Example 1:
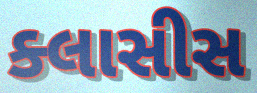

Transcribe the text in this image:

ક્લાસીસ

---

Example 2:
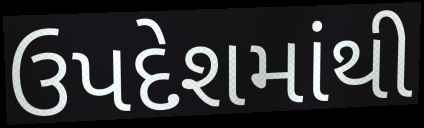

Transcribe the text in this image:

ઉપદેશમાંથી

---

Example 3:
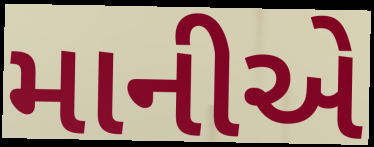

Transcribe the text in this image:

માનીએ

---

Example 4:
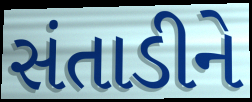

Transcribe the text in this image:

સંતાડીને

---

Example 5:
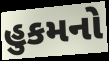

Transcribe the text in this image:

હુકમનો